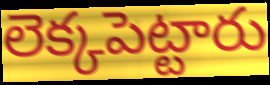
లెక్కపెట్టారు